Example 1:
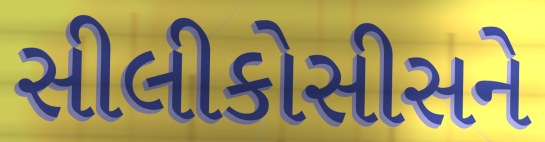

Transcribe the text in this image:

સીલીકોસીસને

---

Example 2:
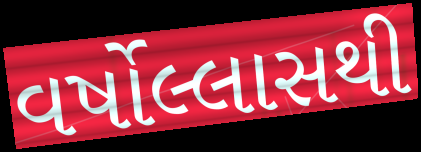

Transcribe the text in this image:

વર્ષોલ્લાસથી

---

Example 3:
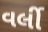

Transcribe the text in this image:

વર્લી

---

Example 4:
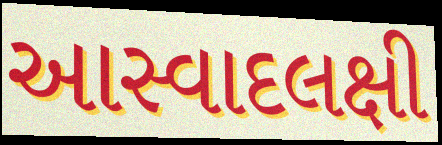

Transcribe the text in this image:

આસ્વાદલક્ષી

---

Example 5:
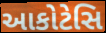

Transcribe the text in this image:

આકોટેસિ